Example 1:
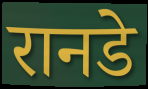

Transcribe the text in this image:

रानडे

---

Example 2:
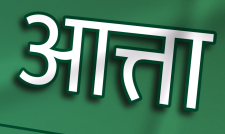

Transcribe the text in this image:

आत्ता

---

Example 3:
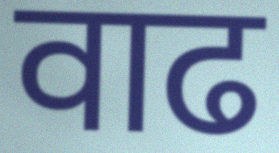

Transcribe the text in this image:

वाढ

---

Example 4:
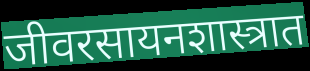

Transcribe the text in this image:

जीवरसायनशास्त्रात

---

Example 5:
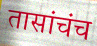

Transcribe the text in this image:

तासांचंच